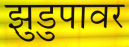
झुडुपावर